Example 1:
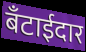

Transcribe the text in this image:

बँटाईदार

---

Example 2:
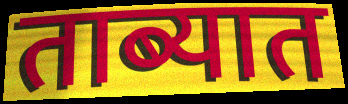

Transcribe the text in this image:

ताब्यात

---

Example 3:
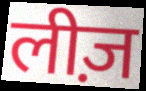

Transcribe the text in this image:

लीज़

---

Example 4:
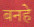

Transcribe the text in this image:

बनहे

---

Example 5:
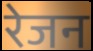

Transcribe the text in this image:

रेजन